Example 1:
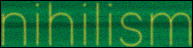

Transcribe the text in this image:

nihilism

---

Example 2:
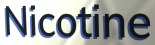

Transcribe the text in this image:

Nicotine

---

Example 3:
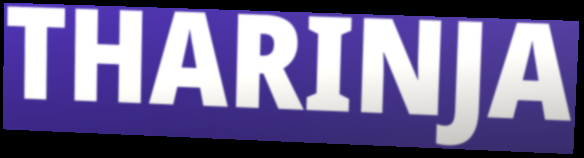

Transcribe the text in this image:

THARINJA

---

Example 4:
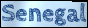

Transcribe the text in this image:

Senegal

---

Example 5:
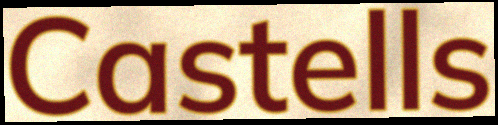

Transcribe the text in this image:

Castells